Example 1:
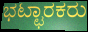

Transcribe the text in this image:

ಭಟ್ಟಾರಕರು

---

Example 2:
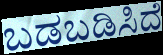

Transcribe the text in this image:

ಬಡಬಡಿಸಿದೆ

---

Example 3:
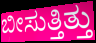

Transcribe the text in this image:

ಬೀಸುತ್ತಿತ್ತು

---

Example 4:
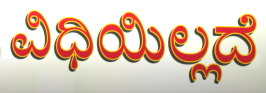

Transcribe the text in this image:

ವಿಧಿಯಿಲ್ಲದೆ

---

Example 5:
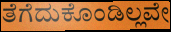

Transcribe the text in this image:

ತೆಗೆದುಕೊಂಡಿಲ್ಲವೇ